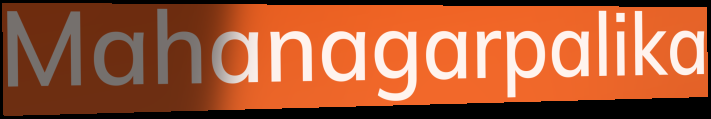
Mahanagarpalika